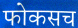
फोकसच